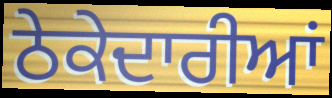
ਠੇਕੇਦਾਰੀਆਂ